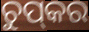
ଚୁପ୍‌କର